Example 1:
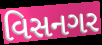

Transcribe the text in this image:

વિસનગર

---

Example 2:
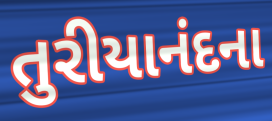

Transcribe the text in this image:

તુરીયાનંદના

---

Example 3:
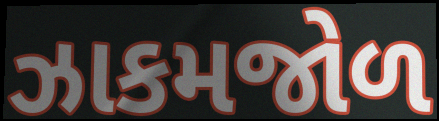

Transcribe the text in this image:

ઝાકમજોળ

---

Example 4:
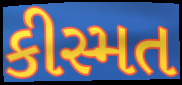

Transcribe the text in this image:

કીસ્મત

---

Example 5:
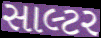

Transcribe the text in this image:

સાલ્ટર